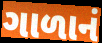
ગાળાનં